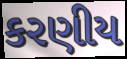
કરણીય